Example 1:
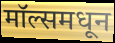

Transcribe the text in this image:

मॉल्समधून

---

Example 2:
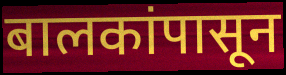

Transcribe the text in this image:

बालकांपासून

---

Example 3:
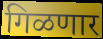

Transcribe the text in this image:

गिळणार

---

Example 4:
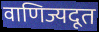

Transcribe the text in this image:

वाणिज्यदूत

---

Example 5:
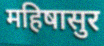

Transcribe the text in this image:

महिषासुर